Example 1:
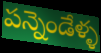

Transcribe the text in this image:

పన్నెండేళ్ళ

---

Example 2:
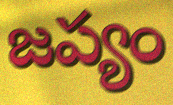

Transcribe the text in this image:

జప్యం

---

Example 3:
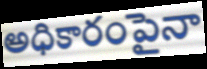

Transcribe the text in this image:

అధికారంపైనా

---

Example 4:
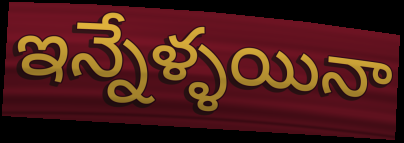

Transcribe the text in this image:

ఇన్నేళ్ళయినా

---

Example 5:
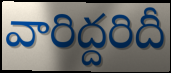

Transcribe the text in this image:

వారిద్దరిదీ